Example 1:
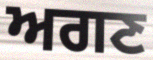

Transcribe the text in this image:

ਅਗਣ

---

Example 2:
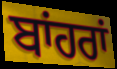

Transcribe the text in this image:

ਬਾਂਹਰਾਂ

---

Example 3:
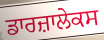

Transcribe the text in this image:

ਡਾਰਜ਼ਾਲੇਕਸ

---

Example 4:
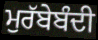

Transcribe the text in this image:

ਮੁਰੱਬੇਬੰਦੀ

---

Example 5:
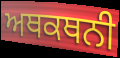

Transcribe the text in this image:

ਅਥਕਥਨੀ